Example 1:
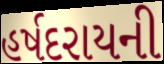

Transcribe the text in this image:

હર્ષદરાયની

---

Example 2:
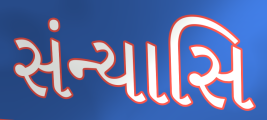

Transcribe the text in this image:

સંન્યાસિ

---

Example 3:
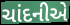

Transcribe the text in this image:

ચાંદનીએ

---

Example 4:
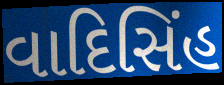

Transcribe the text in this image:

વાદિસિંહ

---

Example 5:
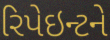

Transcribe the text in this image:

રિપેઇન્ટને